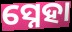
ସ୍ନେହା